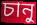
চানু